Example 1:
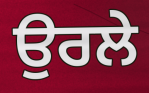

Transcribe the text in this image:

ਉਰਲੇ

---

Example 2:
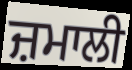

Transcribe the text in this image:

ਜ਼ਮਾਲੀ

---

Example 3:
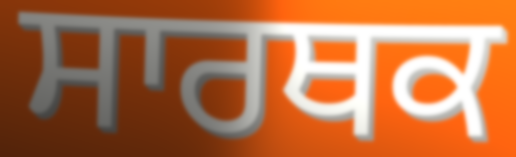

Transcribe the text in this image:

ਸਾਰਥਕ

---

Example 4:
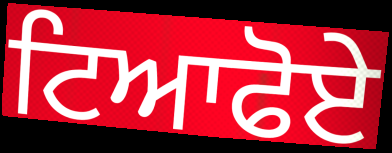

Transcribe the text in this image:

ਟਿਆਫੋਏ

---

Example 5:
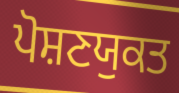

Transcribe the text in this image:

ਪੋਸ਼ਣਯੁਕਤ